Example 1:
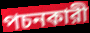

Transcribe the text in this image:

পচনকারী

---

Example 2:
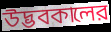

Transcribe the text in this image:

উদ্ভবকালের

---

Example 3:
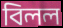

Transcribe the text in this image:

বিলল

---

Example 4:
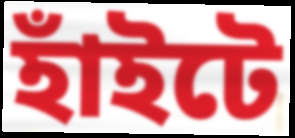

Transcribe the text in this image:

হাঁইটে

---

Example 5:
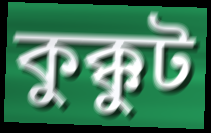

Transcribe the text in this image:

কুক্কুট